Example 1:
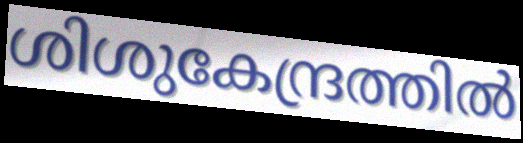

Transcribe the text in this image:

ശിശുകേന്ദ്രത്തിൽ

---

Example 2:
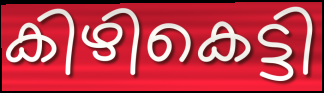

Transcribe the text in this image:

കിഴികെട്ടി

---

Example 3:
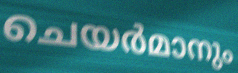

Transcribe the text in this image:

ചെയർമാനും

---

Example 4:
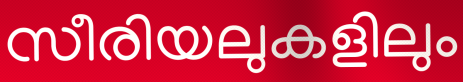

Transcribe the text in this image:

സീരിയലുകളിലും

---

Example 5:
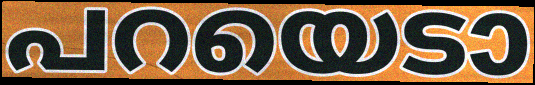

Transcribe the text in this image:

പറയെടാ